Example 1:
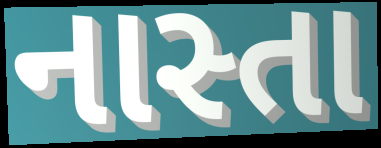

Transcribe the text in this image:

નાસ્તા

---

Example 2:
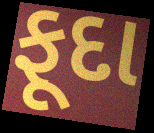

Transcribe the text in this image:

ફૂદા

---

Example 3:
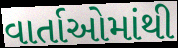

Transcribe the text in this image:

વાર્તાઓમાંથી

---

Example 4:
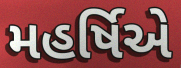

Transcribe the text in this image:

મહર્ષિએ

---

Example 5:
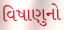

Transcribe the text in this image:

વિષાણુનો